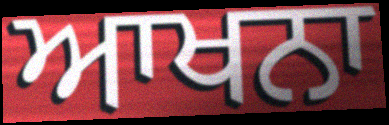
ਆਖਨਾ